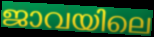
ജാവയിലെ